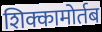
शिक्‍कामोर्तब